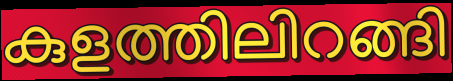
കുളത്തിലിറങ്ങി